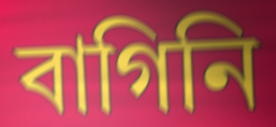
বাগিনি